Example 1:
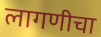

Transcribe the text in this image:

लागणीचा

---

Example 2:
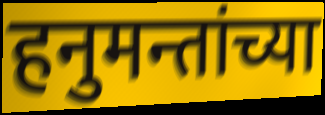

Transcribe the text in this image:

हनुमन्तांच्या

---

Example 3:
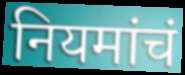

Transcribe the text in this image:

नियमांचं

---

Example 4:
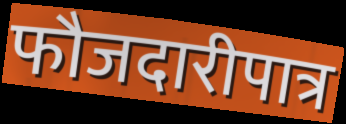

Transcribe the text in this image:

फौजदारीपात्र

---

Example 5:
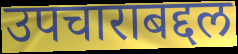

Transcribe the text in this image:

उपचाराबद्दल